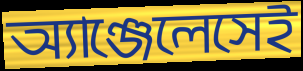
অ্যাঞ্জেলেসেই